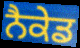
ਨੈਕੇਡ